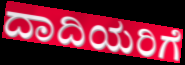
ದಾದಿಯರಿಗೆ